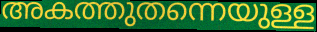
അകത്തുതന്നെയുള്ള